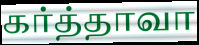
கர்த்தாவா